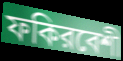
ফকিরবেশী